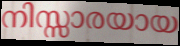
നിസ്സാരയായ